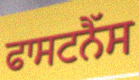
ਫਾਸਟਨੈੱਸ